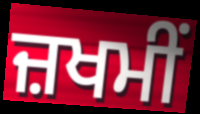
ਜ਼ਖਮੀਂ